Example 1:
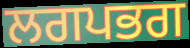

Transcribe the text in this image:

ਲਗਪਭਗ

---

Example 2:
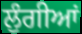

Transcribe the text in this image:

ਲੁੰਗੀਆਂ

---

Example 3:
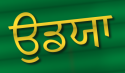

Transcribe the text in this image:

ਉਡਯਾ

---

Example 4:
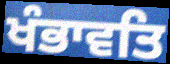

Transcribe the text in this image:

ਖੰਭਾਵਤਿ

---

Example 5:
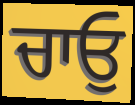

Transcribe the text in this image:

ਚਾਓੁ